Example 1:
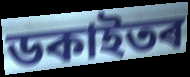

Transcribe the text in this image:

ডকাইতৰ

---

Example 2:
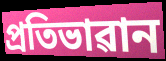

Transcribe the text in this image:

প্ৰতিভাৱান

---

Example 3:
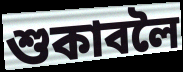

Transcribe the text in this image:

শুকাবলৈ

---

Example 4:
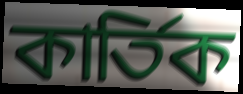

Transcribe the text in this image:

কাৰ্তিক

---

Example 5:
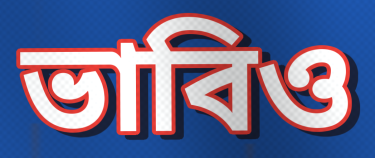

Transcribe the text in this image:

ভাবিও